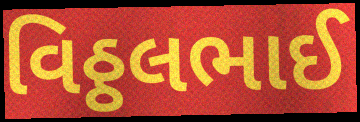
વિઠ્ઠલભાઈ